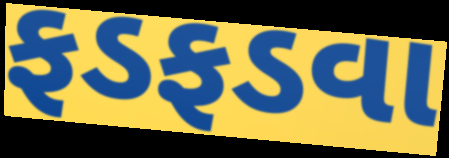
ફડફડવા